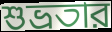
শুভ্রতার